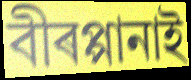
বীৰপ্পানাই